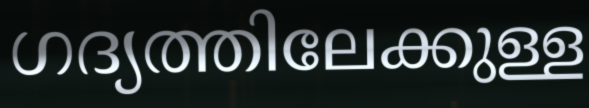
ഗദ്യത്തിലേക്കുള്ള